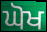
ਘੋਖ